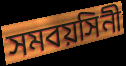
সমবয়সিনী